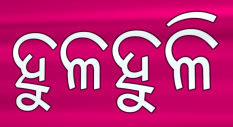
ହୁଳହୁଳି